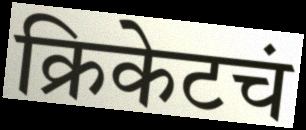
क्रिकेटचं